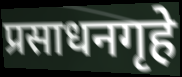
प्रसाधनगृहे